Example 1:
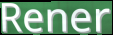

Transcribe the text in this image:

Rener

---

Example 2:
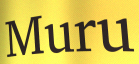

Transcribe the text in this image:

Muru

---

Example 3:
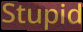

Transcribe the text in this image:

Stupid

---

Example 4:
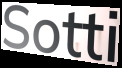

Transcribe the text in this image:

Sotti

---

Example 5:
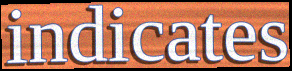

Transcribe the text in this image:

indicates